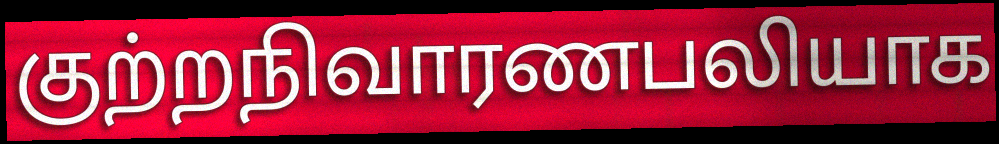
குற்றநிவாரணபலியாக